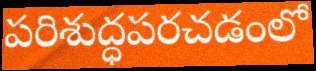
పరిశుద్ధపరచడంలో